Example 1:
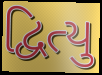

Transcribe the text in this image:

દ્વિત્યુ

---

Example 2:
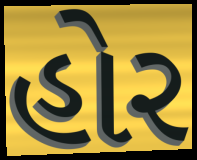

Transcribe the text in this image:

હોર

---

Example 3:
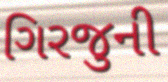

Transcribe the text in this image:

ગિરજુની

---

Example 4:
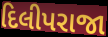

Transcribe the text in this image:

દિલીપરાજા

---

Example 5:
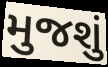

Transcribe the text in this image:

મુજશું